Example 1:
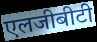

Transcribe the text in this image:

एलजीबीटी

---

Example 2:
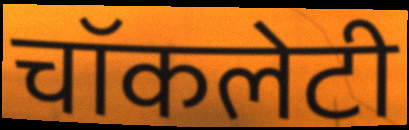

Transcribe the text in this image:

चॉकलेटी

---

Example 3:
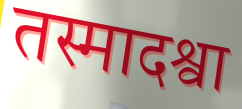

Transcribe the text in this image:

तस्मादश्वा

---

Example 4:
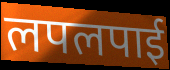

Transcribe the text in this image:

लपलपाई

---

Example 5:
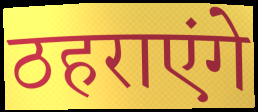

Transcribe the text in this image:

ठहराएंगे